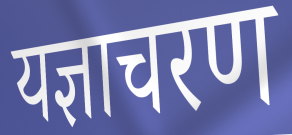
यज्ञाचरण